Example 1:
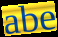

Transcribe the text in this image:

abe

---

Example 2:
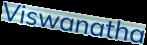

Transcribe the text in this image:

Viswanatha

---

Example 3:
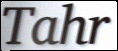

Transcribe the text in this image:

Tahr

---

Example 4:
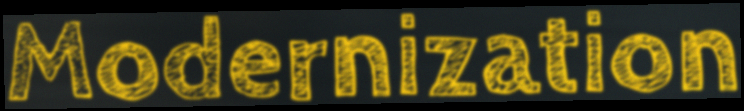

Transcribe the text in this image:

Modernization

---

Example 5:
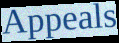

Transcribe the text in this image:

Appeals